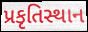
પ્રકૃતિસ્થાન